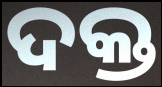
ଦକ୍ତ